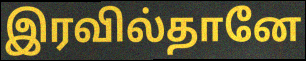
இரவில்தானே